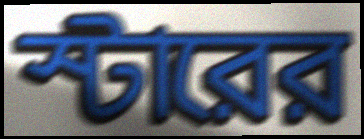
স্টারের